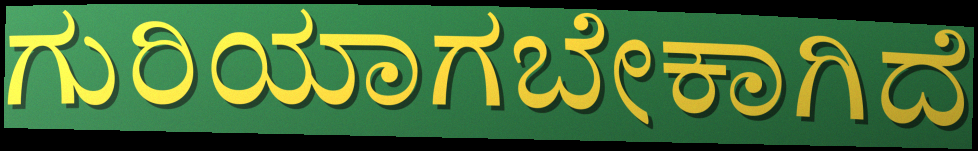
ಗುರಿಯಾಗಬೇಕಾಗಿದೆ